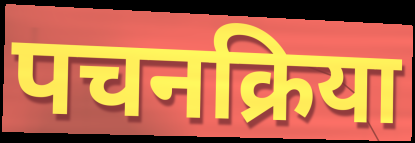
पचनक्रिया